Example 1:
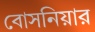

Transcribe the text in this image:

বোসনিয়ার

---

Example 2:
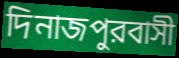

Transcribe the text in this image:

দিনাজপুরবাসী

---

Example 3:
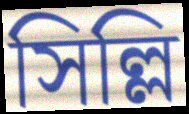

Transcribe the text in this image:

সিল্লি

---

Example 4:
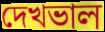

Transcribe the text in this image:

দেখভাল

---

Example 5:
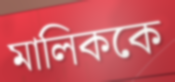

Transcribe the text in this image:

মালিককে